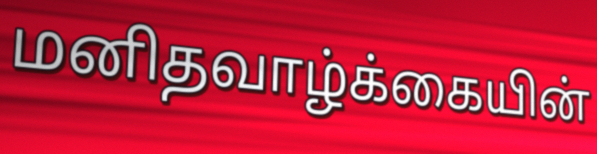
மனிதவாழ்க்கையின்